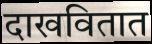
दाखवितात